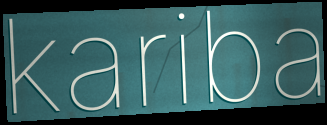
kariba